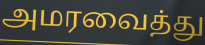
அமரவைத்து